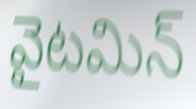
వైటమిన్